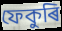
ফেকুৰি